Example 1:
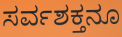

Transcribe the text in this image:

ಸರ್ವಶಕ್ತನೂ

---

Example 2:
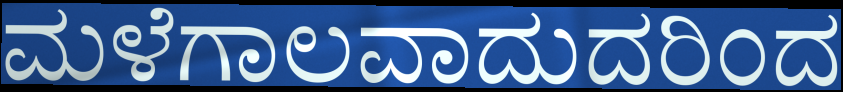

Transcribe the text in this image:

ಮಳೆಗಾಲವಾದುದರಿಂದ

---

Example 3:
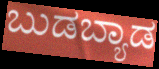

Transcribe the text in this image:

ಬುಡಬ್ಯಾಡ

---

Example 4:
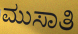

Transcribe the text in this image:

ಮುಸಾತಿ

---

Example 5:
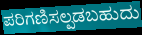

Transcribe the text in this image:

ಪರಿಗಣಿಸಲ್ಪಡಬಹುದು